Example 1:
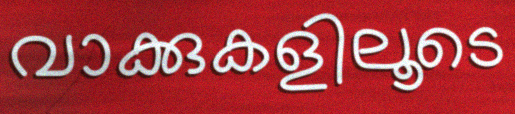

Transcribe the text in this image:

വാക്കുകളിലൂടെ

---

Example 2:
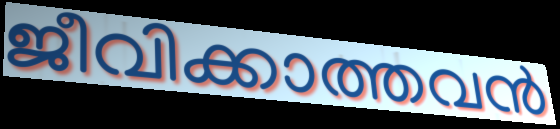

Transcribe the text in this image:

ജീവിക്കാത്തവൻ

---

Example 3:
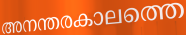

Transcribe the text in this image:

അനന്തരകാലത്തെ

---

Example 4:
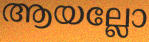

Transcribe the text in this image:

ആയല്ലോ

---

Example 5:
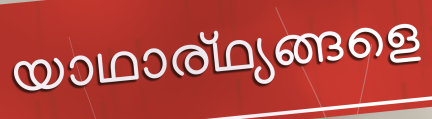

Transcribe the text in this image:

യാഥാര്ഥ്യങ്ങളെ